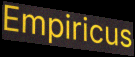
Empiricus